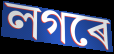
লগৰে